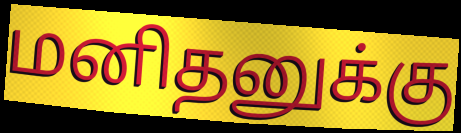
மனிதனுக்கு